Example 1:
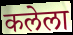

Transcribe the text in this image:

कलेला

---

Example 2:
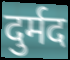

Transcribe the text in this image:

दुर्मद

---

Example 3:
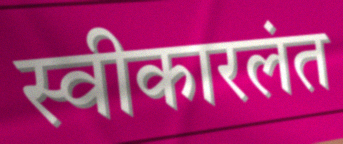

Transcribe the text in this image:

स्वीकारलंत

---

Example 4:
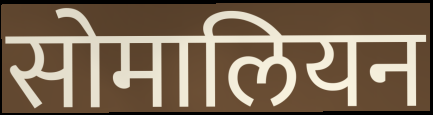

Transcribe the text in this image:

सोमालियन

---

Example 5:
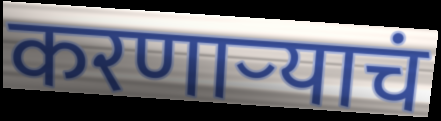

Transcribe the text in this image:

करणाऱ्याचं